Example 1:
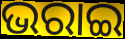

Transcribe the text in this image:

ଭରାଇ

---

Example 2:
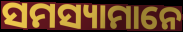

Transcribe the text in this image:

ସମସ୍ୟାମାନେ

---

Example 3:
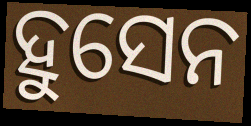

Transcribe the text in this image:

ହୁସେନ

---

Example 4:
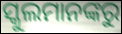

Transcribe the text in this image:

ସ୍କୁଲମାନଙ୍କରୁ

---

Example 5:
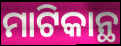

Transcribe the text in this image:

ମାଟିକାନ୍ଥ